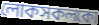
লোকসকলকো